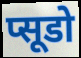
प्सूडो